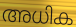
അധിക